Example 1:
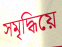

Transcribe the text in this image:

সমৃদ্ধিয়ে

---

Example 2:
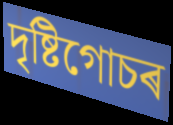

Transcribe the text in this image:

দৃষ্টিগোচৰ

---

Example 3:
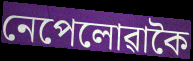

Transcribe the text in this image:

নেপেলোৱাকৈ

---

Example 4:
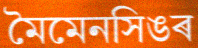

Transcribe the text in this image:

মৈমেনসিঙৰ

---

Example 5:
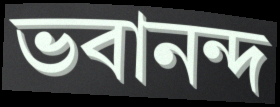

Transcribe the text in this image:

ভবানন্দ